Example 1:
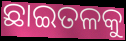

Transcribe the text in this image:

ଛାଇତଳକୁ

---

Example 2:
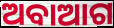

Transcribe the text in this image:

ଅବାଆଗ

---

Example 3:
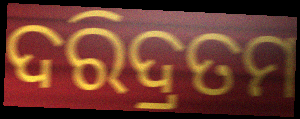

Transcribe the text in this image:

ଦରିଦ୍ରତମ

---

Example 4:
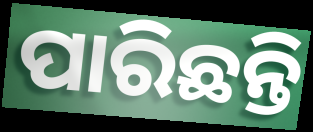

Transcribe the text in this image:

ପାରିଛନ୍ତି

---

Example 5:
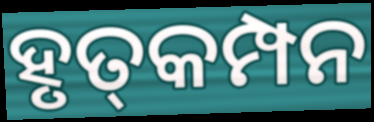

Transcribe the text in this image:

ହୃତ୍‌କମ୍ପନ